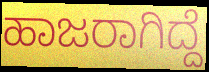
ಹಾಜರಾಗಿದ್ದೆ